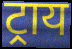
ट्राय